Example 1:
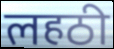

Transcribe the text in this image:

लहठी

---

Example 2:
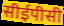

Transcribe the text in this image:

सीईपीसी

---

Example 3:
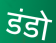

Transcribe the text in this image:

डंडो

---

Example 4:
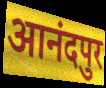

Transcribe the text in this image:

आनंदपुर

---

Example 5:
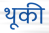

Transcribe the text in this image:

थूकी